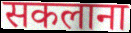
सकलाना